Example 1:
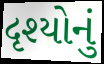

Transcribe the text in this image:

દૃશ્યોનું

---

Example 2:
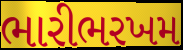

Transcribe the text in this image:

ભારીભરખમ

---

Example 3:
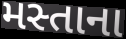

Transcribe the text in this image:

મસ્તાના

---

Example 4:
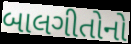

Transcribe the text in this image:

બાલગીતોનો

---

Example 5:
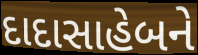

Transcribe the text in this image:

દાદાસાહેબને